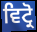
ਵਿਟ੍ਰੋ